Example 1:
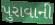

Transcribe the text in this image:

પુરાવાની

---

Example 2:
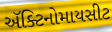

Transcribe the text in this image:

ઍક્ટિનોમાયસીટ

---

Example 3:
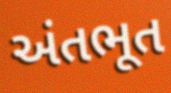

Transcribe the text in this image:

અંતભૂત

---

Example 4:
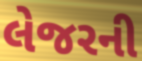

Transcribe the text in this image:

લેજરની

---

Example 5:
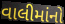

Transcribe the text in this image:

વાલીમાંનો